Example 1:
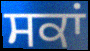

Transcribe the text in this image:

ਸਕਾਂ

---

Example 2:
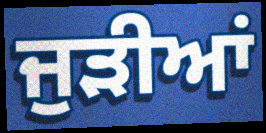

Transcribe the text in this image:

ਜੁੜੀਆਂ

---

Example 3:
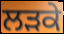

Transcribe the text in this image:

ਲੜਕੇ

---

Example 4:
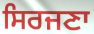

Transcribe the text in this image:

ਸਿਰਜਣਾ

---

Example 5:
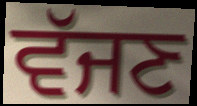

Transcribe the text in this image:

ਵੱਜਣ